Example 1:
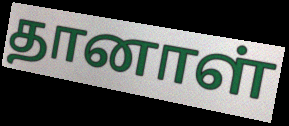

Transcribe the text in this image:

தானாள்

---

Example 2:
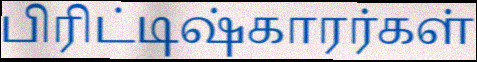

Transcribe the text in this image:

பிரிட்டிஷ்காரர்கள்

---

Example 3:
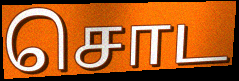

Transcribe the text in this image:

சொட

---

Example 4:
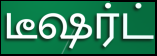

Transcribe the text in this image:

டீஷர்ட்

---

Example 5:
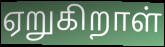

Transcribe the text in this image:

ஏறுகிறாள்